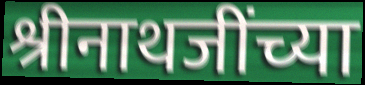
श्रीनाथजींच्या